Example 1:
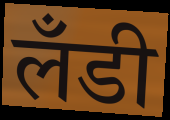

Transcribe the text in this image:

लँडी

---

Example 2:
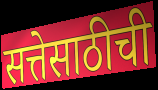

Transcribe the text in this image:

सत्तेसाठीची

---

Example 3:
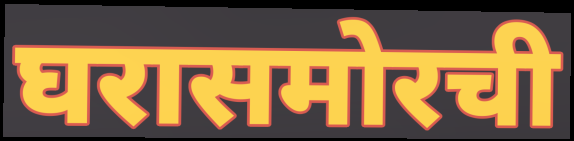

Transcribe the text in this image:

घरासमोरची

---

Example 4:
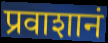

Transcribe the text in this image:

प्रवाशानं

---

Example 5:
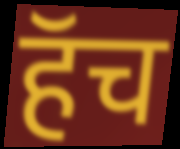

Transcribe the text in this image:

हॅच